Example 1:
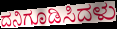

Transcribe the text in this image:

ದನಿಗೂಡಿಸಿದಳು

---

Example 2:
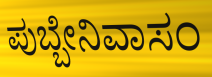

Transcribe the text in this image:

ಪುಬ್ಬೇನಿವಾಸಂ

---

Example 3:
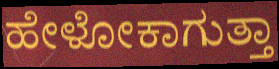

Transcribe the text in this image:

ಹೇಳೋಕಾಗುತ್ತಾ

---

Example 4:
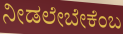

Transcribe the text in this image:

ನೀಡಲೇಬೇಕೆಂಬ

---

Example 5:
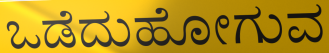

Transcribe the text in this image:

ಒಡೆದುಹೋಗುವ